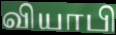
வியாபி